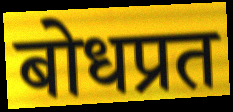
बोधप्रत